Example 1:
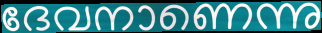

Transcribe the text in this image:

ദേവനാണെന്നു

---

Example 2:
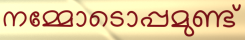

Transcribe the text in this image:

നമ്മോടൊപ്പമുണ്ട്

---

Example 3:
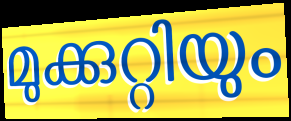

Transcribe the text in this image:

മുക്കുറ്റിയും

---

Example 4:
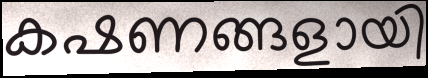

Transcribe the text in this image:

കഷണങ്ങളായി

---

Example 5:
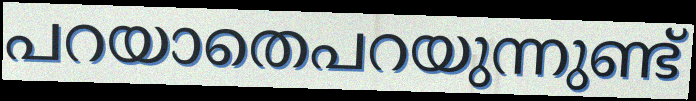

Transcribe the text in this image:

പറയാതെപറയുന്നുണ്ട്